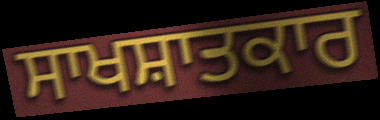
ਸਾਖਸ਼ਾਤਕਾਰ